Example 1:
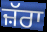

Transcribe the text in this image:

ਜ਼ੱਰਾ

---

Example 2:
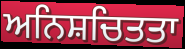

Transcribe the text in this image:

ਅਨਿਸ਼ਚਿਤਤਾ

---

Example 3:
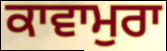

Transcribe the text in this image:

ਕਾਵਾਮੁਰਾ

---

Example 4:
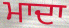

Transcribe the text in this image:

ਮਾਦਾ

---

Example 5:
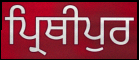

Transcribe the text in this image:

ਪ੍ਰਿਥੀਪੁਰ